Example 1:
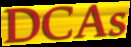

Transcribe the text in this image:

DCAs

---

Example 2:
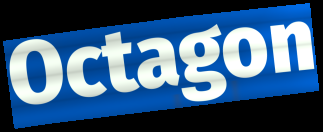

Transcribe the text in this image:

Octagon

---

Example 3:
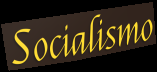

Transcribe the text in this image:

Socialismo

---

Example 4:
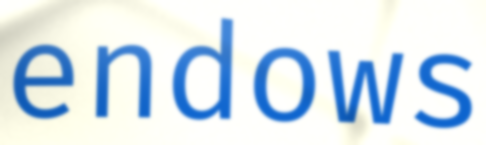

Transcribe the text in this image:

endows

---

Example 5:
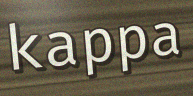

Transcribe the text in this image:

kappa